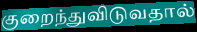
குறைந்துவிடுவதால்